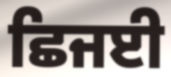
ਛਿਜਈ